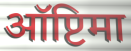
ऑप्टिमा